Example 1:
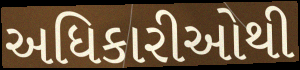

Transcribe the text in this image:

અધિકારીઓથી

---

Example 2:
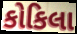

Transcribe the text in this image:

કોકિલા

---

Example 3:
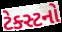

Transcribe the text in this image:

ટેક્સ્ટનો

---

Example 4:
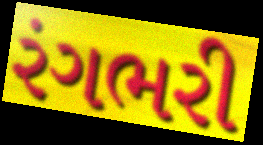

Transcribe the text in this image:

રંગભરી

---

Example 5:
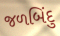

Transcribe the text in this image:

જળબિંદુ